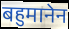
बहुमानेन